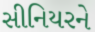
સીનિયરને